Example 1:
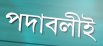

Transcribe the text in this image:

পদাবলীই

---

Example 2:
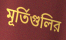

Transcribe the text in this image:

মূর্তিগুলির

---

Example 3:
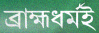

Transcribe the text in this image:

ব্রাহ্মধর্মই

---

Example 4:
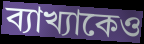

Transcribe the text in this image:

ব্যাখ্যাকেও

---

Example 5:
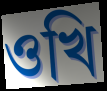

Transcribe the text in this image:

ওখি